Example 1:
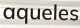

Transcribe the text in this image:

aqueles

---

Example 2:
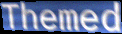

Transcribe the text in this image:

Themed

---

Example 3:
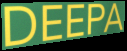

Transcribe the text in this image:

DEEPA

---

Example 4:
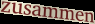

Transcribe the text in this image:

zusammen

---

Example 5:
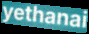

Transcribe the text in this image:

yethanai